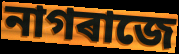
নাগৰাজে